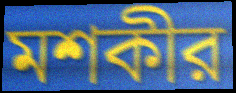
মশকীর